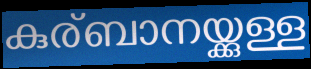
കുര്ബാനയ്ക്കുള്ള